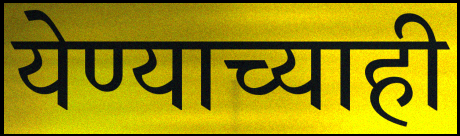
येण्याच्याही